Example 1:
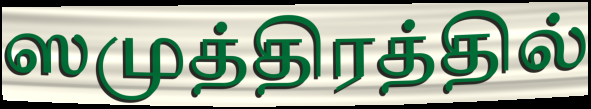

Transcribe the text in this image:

ஸமுத்திரத்தில்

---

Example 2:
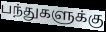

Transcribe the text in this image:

பந்துகளுக்கு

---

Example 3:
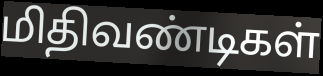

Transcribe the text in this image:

மிதிவண்டிகள்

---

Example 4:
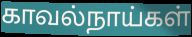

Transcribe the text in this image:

காவல்நாய்கள்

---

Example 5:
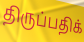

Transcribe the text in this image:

திருப்பதிக்